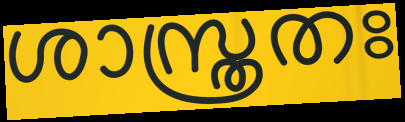
ശാസ്ത്രതഃ